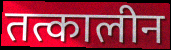
तत्कालीन